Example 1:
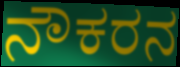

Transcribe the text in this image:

ನೌಕರನ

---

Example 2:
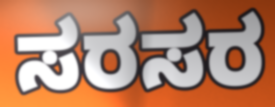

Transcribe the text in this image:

ಸರಸರ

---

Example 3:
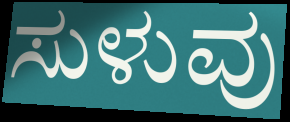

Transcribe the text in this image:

ಸುಳುವು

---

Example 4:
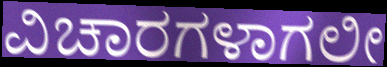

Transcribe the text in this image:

ವಿಚಾರಗಳಾಗಲೀ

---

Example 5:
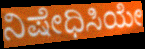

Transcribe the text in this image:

ನಿಷೇಧಿಸಿಯೇ